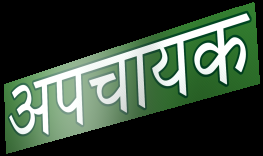
अपचायक